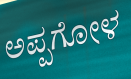
ಅಪ್ಪಗೋಳ